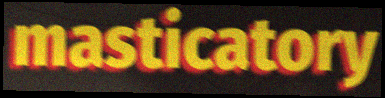
masticatory